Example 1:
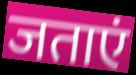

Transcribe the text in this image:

जताएं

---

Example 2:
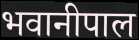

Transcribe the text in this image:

भवानीपाल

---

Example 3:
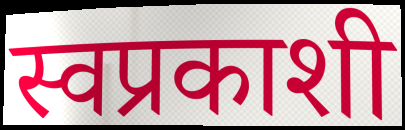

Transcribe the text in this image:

स्वप्रकाशी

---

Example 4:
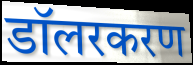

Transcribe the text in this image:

डॉलरकरण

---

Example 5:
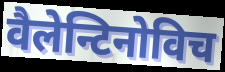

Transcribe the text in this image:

वैलेन्टिनोविच